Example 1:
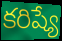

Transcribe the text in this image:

కరిష్యే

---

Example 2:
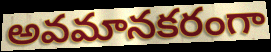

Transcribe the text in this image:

అవమానకరంగా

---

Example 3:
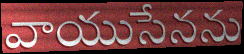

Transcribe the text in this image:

వాయుసేనను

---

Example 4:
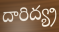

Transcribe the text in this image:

దారిద్య్ర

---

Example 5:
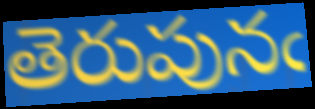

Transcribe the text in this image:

తెరుపునఁ